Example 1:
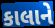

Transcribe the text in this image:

કાલાને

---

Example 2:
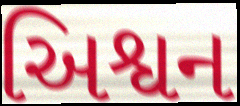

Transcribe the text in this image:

અિશ્વન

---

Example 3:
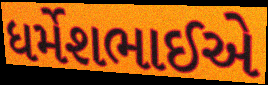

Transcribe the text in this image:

ધર્મેશભાઈએ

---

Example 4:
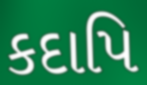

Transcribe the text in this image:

કદાપિ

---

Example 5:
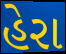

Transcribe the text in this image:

હેરા